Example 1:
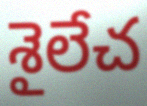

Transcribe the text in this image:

శైలేచ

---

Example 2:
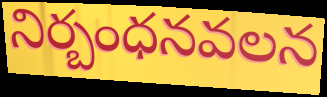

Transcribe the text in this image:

నిర్బంధనవలన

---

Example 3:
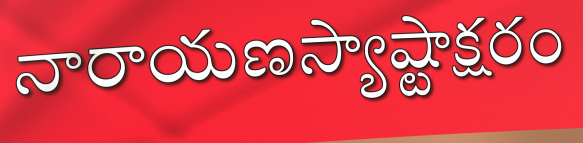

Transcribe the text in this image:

నారాయణస్యాష్టాక్షరం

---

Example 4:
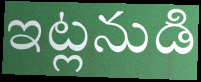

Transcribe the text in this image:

ఇట్లనుడి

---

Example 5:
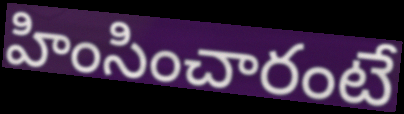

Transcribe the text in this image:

హింసించారంటే